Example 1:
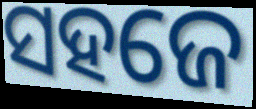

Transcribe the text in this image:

ସହଜେ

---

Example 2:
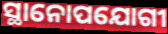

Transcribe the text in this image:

ସ୍ଥାନୋପଯୋଗୀ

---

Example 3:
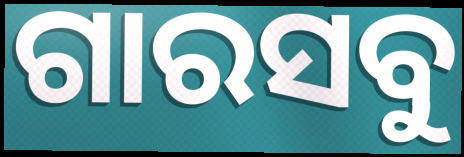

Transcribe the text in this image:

ଗାରସବୁ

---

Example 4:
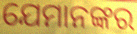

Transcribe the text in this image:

ଯେମାନଙ୍କର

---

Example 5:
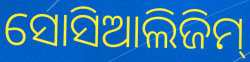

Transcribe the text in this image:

ସୋସିଆଲିଜିମ୍